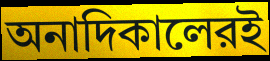
অনাদিকালেরই